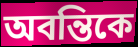
অবন্তিকে